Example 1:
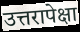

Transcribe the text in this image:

उत्तरापेक्षा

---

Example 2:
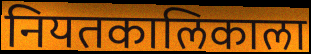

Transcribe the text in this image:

नियतकालिकाला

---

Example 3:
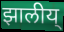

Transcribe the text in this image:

झालीय्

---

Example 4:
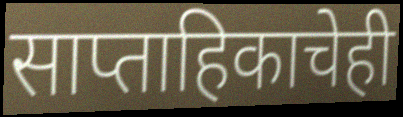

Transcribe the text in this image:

साप्ताहिकाचेही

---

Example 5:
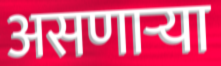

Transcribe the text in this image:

असणाऱ्या